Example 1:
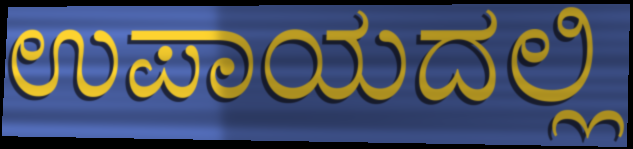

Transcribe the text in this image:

ಉಪಾಯದಲ್ಲಿ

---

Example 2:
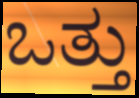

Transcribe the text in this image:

ಒತ್ತು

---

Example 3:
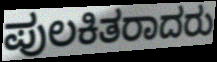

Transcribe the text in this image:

ಪುಲಕಿತರಾದರು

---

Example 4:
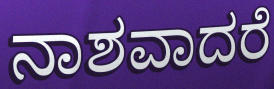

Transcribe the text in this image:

ನಾಶವಾದರೆ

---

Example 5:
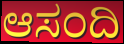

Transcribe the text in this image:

ಆಸಂದಿ